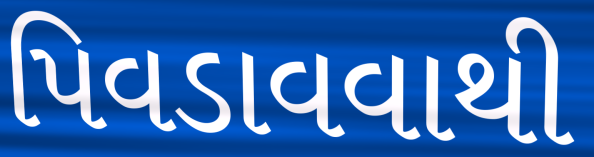
પિવડાવવાથી